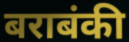
बराबंकी